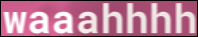
waaahhhh